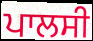
ਪਾਲਸੀ